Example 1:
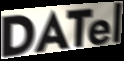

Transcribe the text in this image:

DATel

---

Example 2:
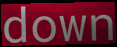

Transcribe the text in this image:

down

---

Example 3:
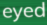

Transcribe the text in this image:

eyed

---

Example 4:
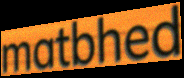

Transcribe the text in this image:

matbhed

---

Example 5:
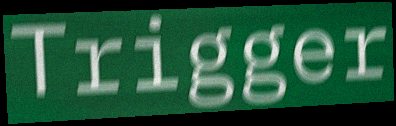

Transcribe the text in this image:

Trigger